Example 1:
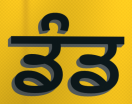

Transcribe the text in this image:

ਡੰਡ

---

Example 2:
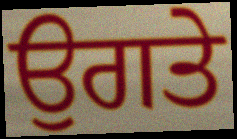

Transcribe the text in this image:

ਉਗਤੇ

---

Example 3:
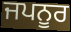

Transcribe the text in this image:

ਜਪਨੂਰ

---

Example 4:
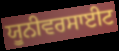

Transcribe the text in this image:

ਯੂਨੀਵਰਸਾਈਟ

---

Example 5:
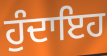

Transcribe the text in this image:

ਹੁੰਦਾਇਹ